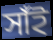
সাঁই